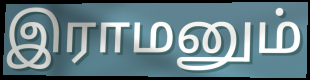
இராமனும்